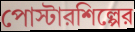
পোস্টারশিল্পের